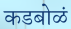
कडबोळं